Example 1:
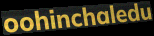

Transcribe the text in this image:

oohinchaledu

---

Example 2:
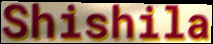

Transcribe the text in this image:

Shishila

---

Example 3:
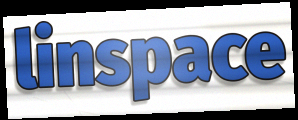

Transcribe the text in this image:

linspace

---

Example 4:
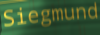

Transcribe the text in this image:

Siegmund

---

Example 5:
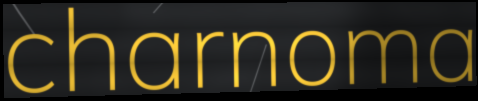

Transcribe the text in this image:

charnoma